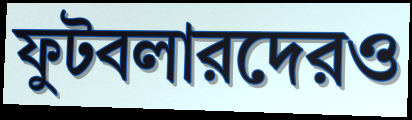
ফুটবলারদেরও